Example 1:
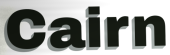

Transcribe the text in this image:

Cairn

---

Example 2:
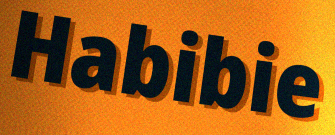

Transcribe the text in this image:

Habibie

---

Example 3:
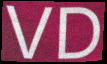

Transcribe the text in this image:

VD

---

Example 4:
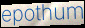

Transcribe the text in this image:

epothum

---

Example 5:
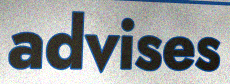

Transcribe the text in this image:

advises